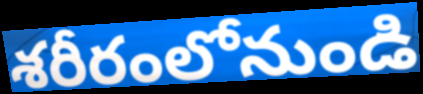
శరీరంలోనుండి